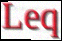
Leq